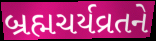
બ્રહ્મચર્યવ્રતને